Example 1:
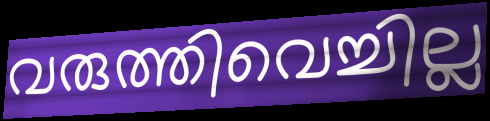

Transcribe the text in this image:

വരുത്തിവെച്ചില്ല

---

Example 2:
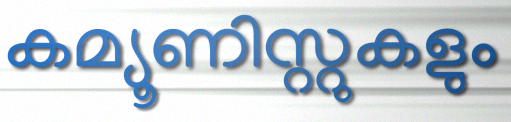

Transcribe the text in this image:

കമ്യൂണിസ്റ്റുകളും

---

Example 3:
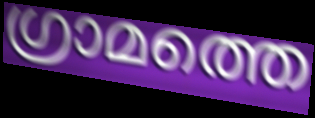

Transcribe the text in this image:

ഗ്രാമത്തെ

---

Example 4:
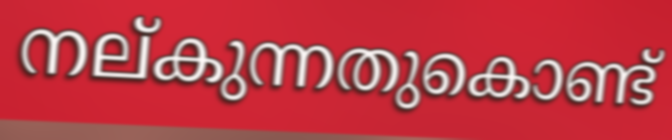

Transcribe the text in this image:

നല്കുന്നതുകൊണ്ട്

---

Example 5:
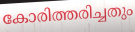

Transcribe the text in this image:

കോരിത്തരിച്ചതും